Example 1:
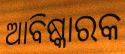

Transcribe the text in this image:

ଆବିଷ୍କାରକ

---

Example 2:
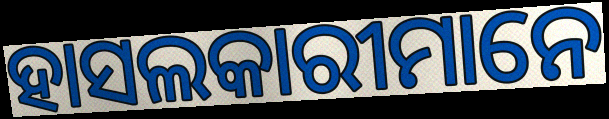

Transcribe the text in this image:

ହାସଲକାରୀମାନେ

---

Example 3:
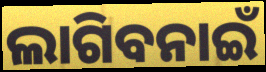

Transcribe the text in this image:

ଲାଗିବନାଇଁ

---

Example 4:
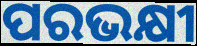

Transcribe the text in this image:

ପରଭକ୍ଷୀ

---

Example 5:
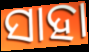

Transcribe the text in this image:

ସାହା